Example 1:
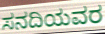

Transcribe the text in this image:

ಸನದಿಯವರ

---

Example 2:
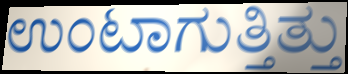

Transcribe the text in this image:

ಉಂಟಾಗುತ್ತಿತ್ತು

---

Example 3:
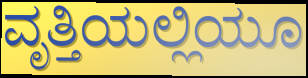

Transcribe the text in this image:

ವೃತ್ತಿಯಲ್ಲಿಯೂ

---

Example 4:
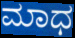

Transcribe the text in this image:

ಮಾಧ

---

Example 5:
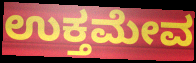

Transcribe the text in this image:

ಉಕ್ತಮೇವ